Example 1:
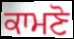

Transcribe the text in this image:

ਕਾਮਣੋ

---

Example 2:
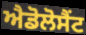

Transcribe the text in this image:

ਐਡੋਲੋਸੈਂਟ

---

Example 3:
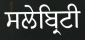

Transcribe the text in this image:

ਸਲੇਬ੍ਰਿਟੀ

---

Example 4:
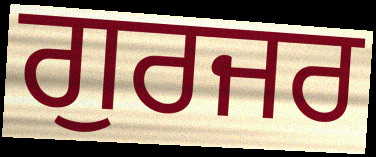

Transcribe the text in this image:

ਗੁਰਜਰ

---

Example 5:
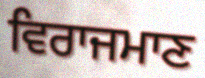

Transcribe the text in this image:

ਵਿਰਾਜਮਾਣ